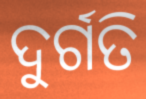
ଦୁର୍ଗତି